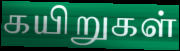
கயிறுகள்